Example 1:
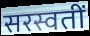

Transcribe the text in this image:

सरस्वतीं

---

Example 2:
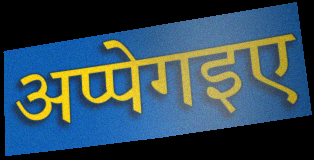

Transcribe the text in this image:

अप्पेगइए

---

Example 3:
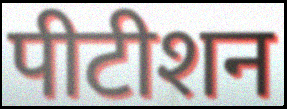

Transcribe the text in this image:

पीटीशन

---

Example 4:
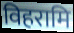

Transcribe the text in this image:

विहरामि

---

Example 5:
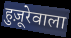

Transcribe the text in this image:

हुज़ूरेवाला